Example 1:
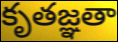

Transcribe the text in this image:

కృతజ్ఞతా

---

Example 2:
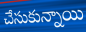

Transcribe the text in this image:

చేసుకున్నాయి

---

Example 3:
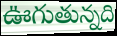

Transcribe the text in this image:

ఊగుతున్నది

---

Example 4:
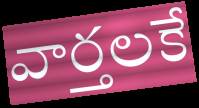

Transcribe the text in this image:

వార్తలకే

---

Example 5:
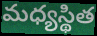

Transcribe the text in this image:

మధ్యస్థిత